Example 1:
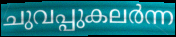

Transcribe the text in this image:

ചുവപ്പുകലർന്ന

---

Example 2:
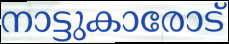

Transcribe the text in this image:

നാട്ടുകാരോട്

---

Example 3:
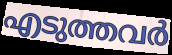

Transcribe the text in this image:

എടുത്തവർ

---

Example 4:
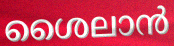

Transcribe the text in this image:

ശൈലാൻ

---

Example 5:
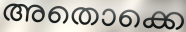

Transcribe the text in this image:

അതൊക്കെ